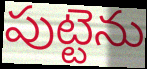
పుట్టెను